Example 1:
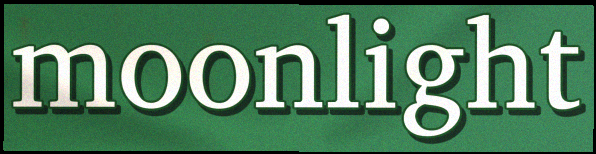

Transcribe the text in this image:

moonlight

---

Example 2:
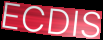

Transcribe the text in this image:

ECDIS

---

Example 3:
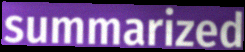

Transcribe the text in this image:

summarized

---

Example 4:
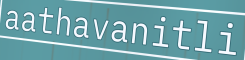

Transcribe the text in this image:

aathavanitli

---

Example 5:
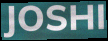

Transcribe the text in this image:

JOSHI